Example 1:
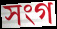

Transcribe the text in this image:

সংগ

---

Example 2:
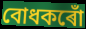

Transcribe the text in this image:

বোধকৰোঁ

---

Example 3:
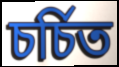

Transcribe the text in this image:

চৰ্চিত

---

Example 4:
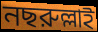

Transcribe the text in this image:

নছৰুল্লাই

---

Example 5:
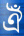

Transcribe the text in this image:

ঐঁ